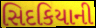
સિદકિયાની